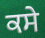
ਕਸੇ